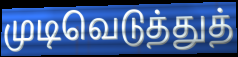
முடிவெடுத்துத்